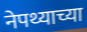
नेपथ्याच्या